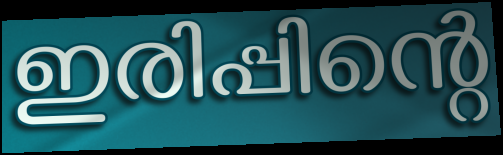
ഇരിപ്പിന്റെ